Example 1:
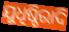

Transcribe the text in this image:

ଯୁଧିଷ୍ଠିରାଦି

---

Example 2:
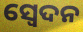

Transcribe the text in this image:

ସ୍ଵେଦନ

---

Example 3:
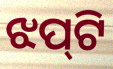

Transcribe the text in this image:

ଝପ୍‌ଟି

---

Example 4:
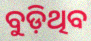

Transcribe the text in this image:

ବୁଡ଼ିଥିବ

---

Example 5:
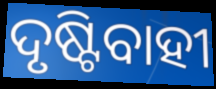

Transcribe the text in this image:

ଦୃଷ୍ଟିବାହୀ